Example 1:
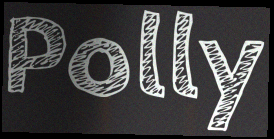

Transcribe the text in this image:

Polly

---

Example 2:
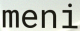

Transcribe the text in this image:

meni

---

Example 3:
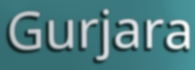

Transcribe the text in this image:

Gurjara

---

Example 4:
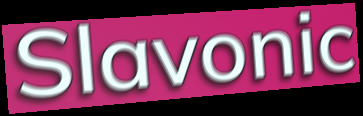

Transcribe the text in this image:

Slavonic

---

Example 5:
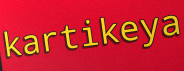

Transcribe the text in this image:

kartikeya